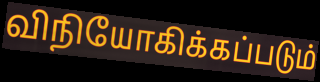
விநியோகிக்கப்படும்